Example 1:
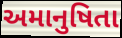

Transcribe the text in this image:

અમાનુષિતા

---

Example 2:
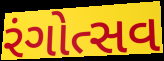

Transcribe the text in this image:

રંગોત્સવ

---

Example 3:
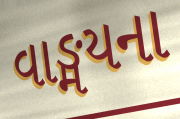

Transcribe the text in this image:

વાઙ્મયના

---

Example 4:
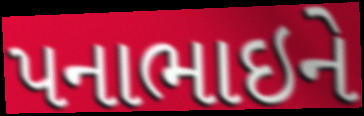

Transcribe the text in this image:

પનાભાઇને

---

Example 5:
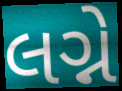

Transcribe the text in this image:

લગ્ને